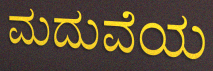
ಮದುವೆಯ